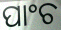
ପାଂଚ